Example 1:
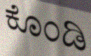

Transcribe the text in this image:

ಕೊಂಡಿ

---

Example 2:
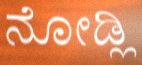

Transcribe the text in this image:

ನೋಡ್ಲಿ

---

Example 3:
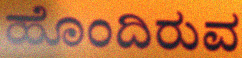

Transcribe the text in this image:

ಹೊಂದಿರುವ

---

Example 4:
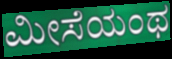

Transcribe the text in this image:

ಮೀಸೆಯಂಥ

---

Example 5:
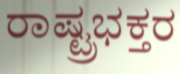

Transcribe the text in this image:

ರಾಷ್ಟ್ರಭಕ್ತರ